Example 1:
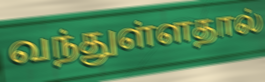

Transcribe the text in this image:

வந்துள்ளதால்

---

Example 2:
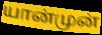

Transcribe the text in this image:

யான்முன்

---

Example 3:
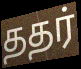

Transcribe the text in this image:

ததர்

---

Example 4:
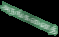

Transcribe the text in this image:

அநங்கனைத்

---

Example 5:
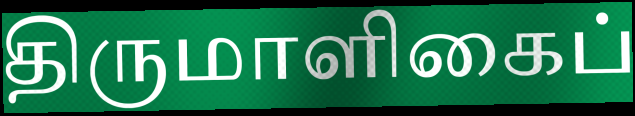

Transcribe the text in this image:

திருமாளிகைப்